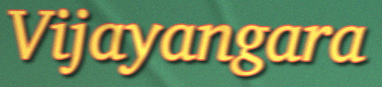
Vijayangara